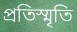
প্রতিস্মৃতি